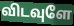
விடவுளே